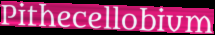
Pithecellobium